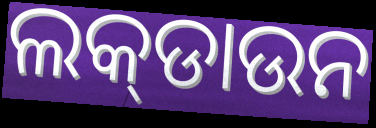
ଲକ୍‍ଡାଉନ